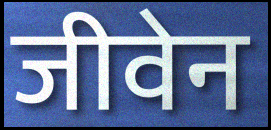
जीवेन